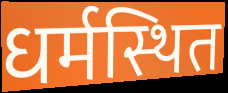
धर्मस्थित